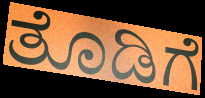
ತೊಡಿಗೆ